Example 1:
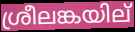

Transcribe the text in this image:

ശ്രീലങ്കയില്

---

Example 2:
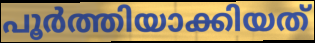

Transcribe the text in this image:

പൂർത്തിയാക്കിയത്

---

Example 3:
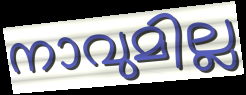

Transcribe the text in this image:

നാവുമില്ല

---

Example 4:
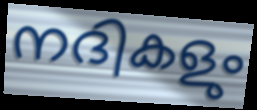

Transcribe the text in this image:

നദികളും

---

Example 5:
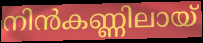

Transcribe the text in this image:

നിൻകണ്ണിലായ്